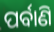
ପର୍ବାଣି